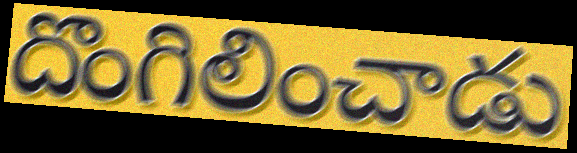
దొంగిలించాడు